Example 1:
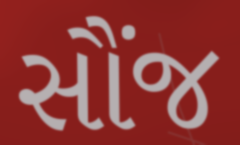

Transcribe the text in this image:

સૌંજ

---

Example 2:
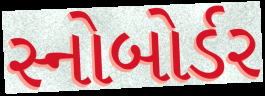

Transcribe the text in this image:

સ્નોબોર્ડર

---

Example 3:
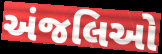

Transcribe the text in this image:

અંજલિઓ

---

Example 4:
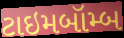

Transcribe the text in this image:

ટાઇમબૉમ્બ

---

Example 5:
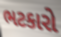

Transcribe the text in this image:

ભટકારો